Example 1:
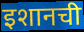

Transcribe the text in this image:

इशानची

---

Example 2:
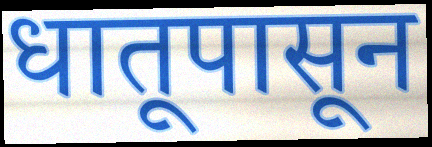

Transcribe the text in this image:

धातूपासून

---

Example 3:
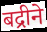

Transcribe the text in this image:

बद्रीने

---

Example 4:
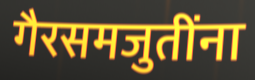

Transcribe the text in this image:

गैरसमजुतींना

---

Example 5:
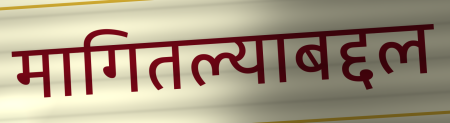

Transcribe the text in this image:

मागितल्याबद्दल